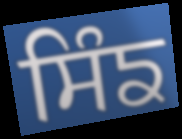
ਸਿੰਙ